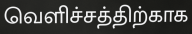
வெளிச்சத்திற்காக